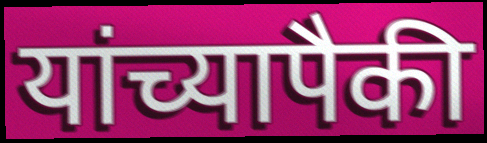
यांच्यापैकी